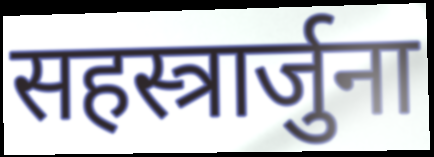
सहस्त्रार्जुना